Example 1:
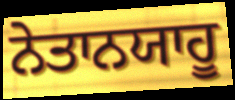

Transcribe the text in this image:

ਨੇਤਾਨਯਾਹੂ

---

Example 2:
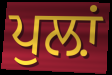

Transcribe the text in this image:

ਪੁਲ਼ਾਂ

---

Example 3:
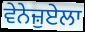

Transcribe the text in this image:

ਵੇਨੇਜ਼ੁਏਲਾ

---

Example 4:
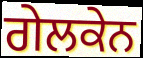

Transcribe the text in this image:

ਗੇਲਕੇਨ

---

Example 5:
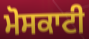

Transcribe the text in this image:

ਮੋਸਕਾਟੀ